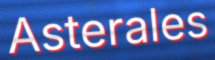
Asterales